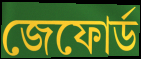
জেফোর্ড